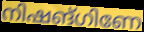
നിഷങ്ഗിണേ